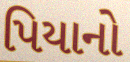
પિયાનો